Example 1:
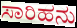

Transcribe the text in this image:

ಸಾರಿಹನು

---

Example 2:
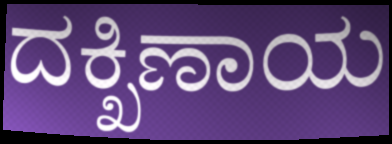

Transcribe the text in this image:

ದಕ್ಖಿಣಾಯ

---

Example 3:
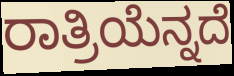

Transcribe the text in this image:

ರಾತ್ರಿಯೆನ್ನದೆ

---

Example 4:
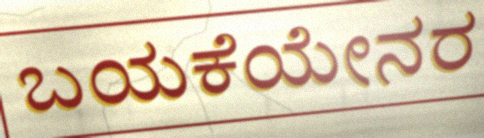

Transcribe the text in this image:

ಬಯಕೆಯೇನರ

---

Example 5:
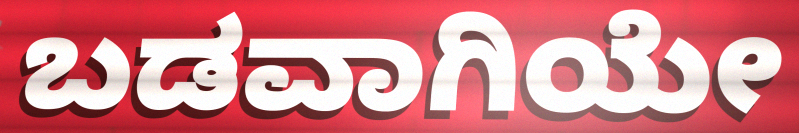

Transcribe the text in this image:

ಬಡವಾಗಿಯೇ